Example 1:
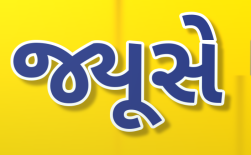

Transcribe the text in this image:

જ્યૂસે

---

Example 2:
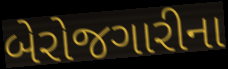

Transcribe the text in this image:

બેરોજગારીના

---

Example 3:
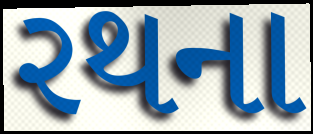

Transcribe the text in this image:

રથના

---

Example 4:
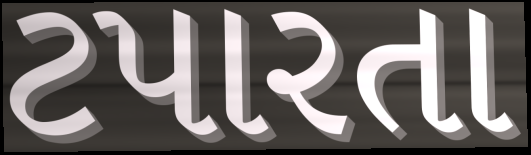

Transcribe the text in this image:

ટપારતા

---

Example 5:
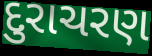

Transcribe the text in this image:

દુરાચરણ